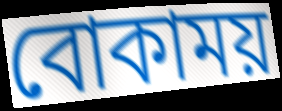
বোকাময়